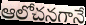
ఆలోచనగానే